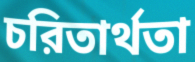
চরিতার্থতা